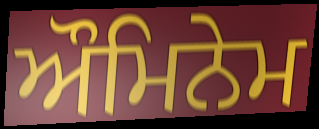
ਔਮਿਨੇਮ